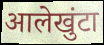
आलेखुंटा